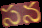
సన